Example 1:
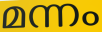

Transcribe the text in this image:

മന്നം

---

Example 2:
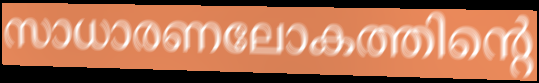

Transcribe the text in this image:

സാധാരണലോകത്തിന്റെ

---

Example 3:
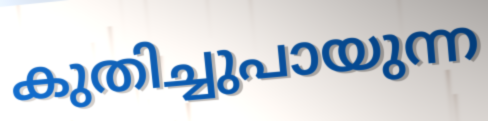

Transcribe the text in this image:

കുതിച്ചുപായുന്ന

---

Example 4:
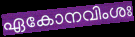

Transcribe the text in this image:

ഏകോനവിംശഃ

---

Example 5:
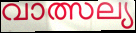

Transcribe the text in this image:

വാത്സല്യ